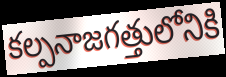
కల్పనాజగత్తులోనికి